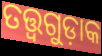
ତତ୍ତ୍ୱଗୁଡ଼ାକ